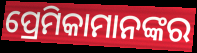
ପ୍ରେମିକାମାନଙ୍କର